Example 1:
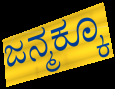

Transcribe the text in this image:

ಜನ್ಮಕ್ಕೂ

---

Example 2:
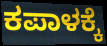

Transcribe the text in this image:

ಕಪಾಳಕ್ಕೆ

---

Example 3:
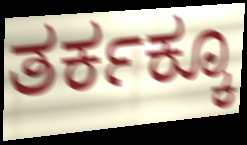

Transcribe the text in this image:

ತರ್ಕಕ್ಕೂ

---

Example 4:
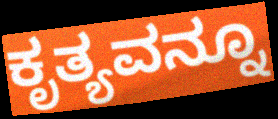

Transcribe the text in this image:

ಕೃತ್ಯವನ್ನೂ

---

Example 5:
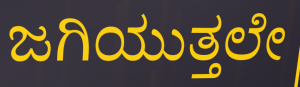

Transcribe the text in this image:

ಜಗಿಯುತ್ತಲೇ